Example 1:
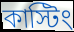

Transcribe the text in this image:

কাস্টিং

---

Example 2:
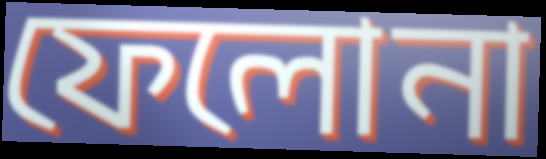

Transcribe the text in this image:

ফেলোনা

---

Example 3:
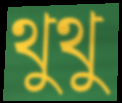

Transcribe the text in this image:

থুথু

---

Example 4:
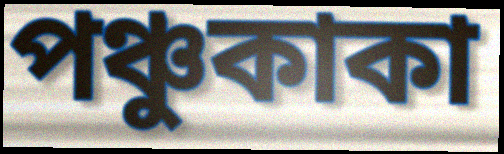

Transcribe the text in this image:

পঞ্চুকাকা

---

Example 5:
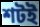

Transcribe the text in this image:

শটই